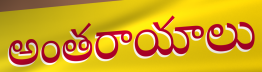
అంతరాయాలు